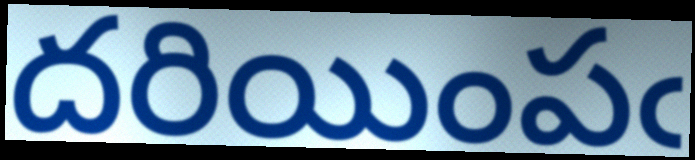
దరియింపఁ